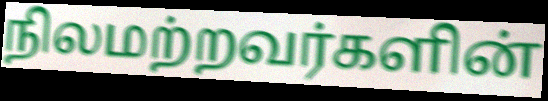
நிலமற்றவர்களின்